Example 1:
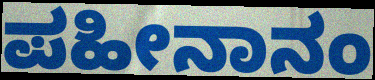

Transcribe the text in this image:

ಪಹೀನಾನಂ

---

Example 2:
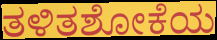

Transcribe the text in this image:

ತಳಿತಶೋಕೆಯ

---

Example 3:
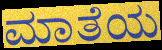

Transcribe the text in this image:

ಮಾತೆಯ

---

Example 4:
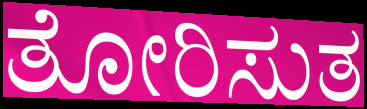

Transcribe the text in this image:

ತೋರಿಸುತ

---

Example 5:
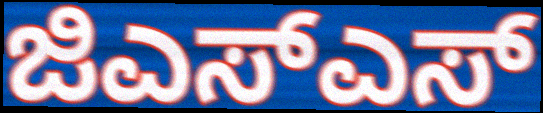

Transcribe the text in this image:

ಜಿಎಸ್ಎಸ್